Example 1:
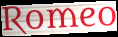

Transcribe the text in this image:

Romeo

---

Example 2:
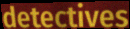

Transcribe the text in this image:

detectives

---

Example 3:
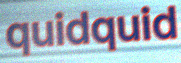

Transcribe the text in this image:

quidquid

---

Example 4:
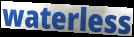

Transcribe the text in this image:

waterless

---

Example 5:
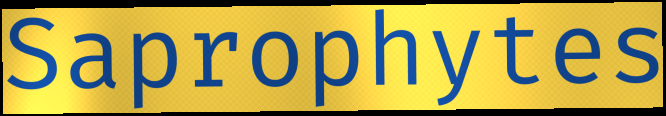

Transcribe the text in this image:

Saprophytes